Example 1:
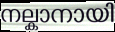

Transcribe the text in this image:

നല്കാനായി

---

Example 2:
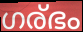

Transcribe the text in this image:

ഗര്ഭം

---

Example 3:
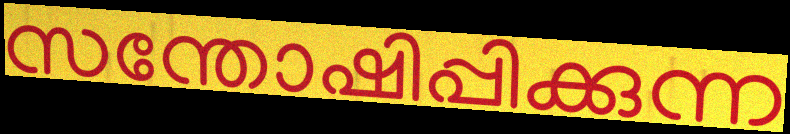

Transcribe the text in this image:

സന്തോഷിപ്പിക്കുന്ന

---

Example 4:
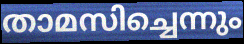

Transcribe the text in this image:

താമസിച്ചെന്നും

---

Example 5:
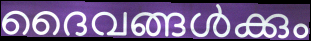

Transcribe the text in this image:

ദൈവങ്ങൾക്കും